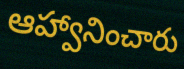
ఆహ్వానించారు